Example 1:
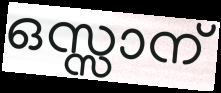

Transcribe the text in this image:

ഒസ്സാന്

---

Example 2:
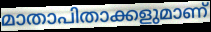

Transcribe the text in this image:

മാതാപിതാക്കളുമാണ്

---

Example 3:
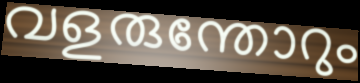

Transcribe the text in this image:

വളരുന്തോറും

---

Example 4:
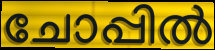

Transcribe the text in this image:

ചോപ്പിൽ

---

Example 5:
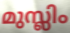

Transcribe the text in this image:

മുസ്ലിം